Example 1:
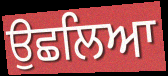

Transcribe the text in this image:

ਉਛਲਿਆ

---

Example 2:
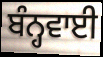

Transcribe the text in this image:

ਬੰਨ੍ਹਵਾਈ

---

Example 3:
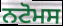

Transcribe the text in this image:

ਨਟੋਮਸ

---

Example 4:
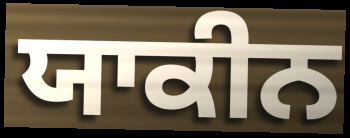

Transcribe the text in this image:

ਯਾਕੀਨ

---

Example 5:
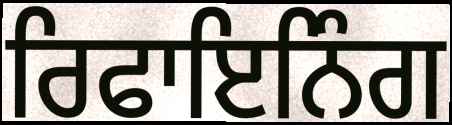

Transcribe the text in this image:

ਰਿਫਾਇਨਿੰਗ